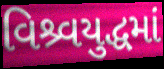
વિશ્ર્વયુદ્ધમાં